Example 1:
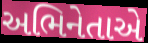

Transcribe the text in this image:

અભિનેતાએ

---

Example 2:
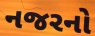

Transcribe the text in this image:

નજરનો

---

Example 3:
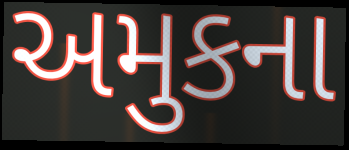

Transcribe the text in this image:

અમુકના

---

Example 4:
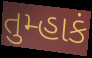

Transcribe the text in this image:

તુમ્હાકં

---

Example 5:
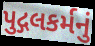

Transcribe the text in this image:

પુદ્ગલકર્મનું